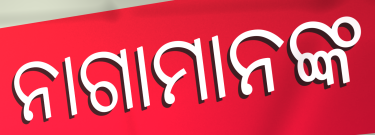
ନାଗାମାନଙ୍କ